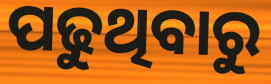
ପଢୁଥିବାରୁ